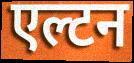
एल्टन